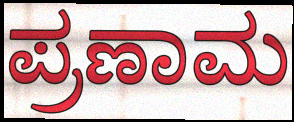
ಪ್ರಣಾಮ